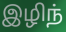
இழிந்